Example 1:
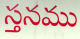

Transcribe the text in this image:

స్తనము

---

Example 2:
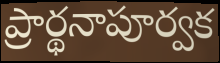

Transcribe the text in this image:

ప్రార్థనాపూర్వక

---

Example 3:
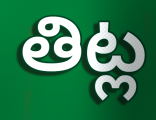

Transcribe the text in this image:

తిట్ల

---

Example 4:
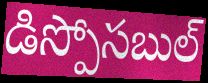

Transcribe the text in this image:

డిస్పోసబుల్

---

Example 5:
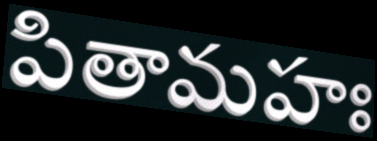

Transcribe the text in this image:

పితామహః